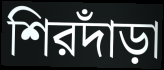
শিরদাঁড়া